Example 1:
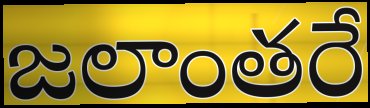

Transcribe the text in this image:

జలాంతరే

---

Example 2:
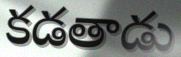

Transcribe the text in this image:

కడతాడు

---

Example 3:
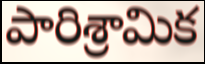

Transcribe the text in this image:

పారిశ్రామిక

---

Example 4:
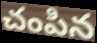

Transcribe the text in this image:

చంపిన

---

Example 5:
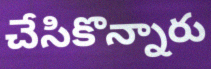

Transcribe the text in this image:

చేసికొన్నారు